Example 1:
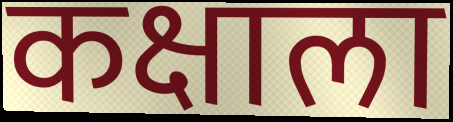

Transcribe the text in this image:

कक्षाला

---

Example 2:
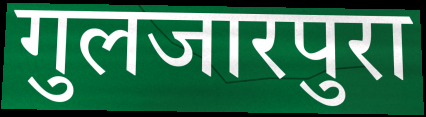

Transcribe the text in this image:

गुलजारपुरा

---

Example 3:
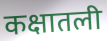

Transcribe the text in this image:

कक्षातली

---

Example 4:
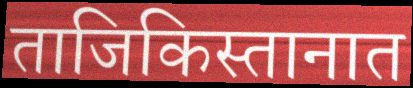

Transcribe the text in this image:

ताजिकिस्तानात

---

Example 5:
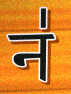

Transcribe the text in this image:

न॑